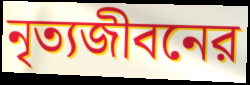
নৃত্যজীবনের